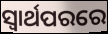
ସ୍ୱାର୍ଥପରରେ